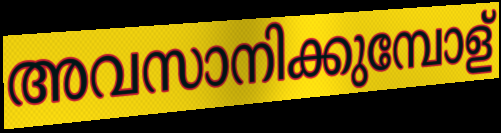
അവസാനിക്കുമ്പോള്